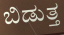
ಬಿಡುತ್ತ